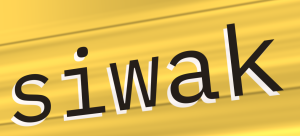
siwak